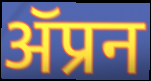
ॲप्रन